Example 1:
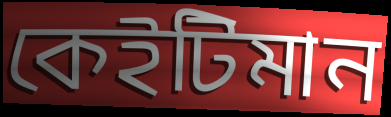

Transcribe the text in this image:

কেইটিমান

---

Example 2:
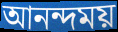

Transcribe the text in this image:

আনন্দময়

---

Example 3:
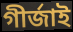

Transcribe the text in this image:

গীৰ্জাই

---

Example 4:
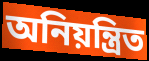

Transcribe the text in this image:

অনিয়ন্ত্ৰিত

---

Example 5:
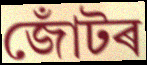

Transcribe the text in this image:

জোঁটৰ